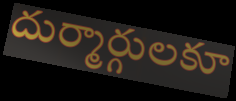
దుర్మార్గులకూ